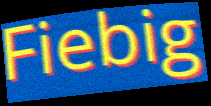
Fiebig